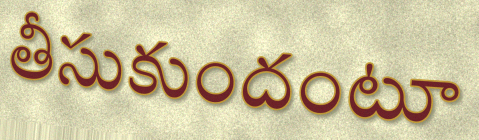
తీసుకుందంటూ